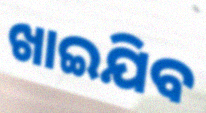
ଖାଇଯିବ